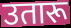
उतारू